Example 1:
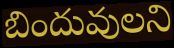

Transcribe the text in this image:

బిందువులని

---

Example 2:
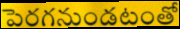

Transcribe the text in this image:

పెరగనుండటంతో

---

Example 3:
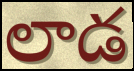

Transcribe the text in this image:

లాడ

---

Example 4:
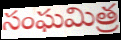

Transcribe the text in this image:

సంఘమిత్ర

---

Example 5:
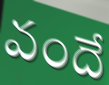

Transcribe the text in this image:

వందే